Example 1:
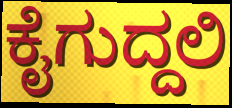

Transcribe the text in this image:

ಕೈಗುದ್ದಲಿ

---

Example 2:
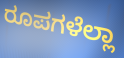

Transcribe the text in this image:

ರೂಪಗಳೆಲ್ಲಾ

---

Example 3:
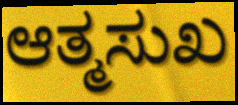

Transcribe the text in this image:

ಆತ್ಮಸುಖ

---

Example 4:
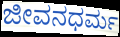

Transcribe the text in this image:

ಜೀವನಧರ್ಮ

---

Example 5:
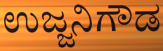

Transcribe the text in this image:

ಉಜ್ಜನಿಗೌಡ